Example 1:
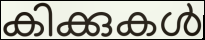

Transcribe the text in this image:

കിക്കുകൾ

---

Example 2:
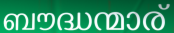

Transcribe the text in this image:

ബൗദ്ധന്മാര്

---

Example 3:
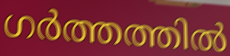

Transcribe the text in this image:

ഗർത്തത്തിൽ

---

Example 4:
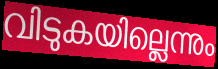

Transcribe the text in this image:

വിടുകയില്ലെന്നും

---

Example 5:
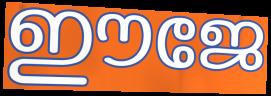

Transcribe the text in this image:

ഈജേ